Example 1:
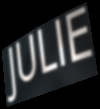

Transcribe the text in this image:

JULIE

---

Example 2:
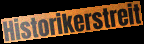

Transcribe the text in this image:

Historikerstreit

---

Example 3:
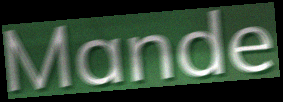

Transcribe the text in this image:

Mande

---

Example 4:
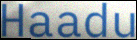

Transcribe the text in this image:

Haadu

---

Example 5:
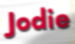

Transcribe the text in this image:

Jodie